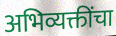
अभिव्यक्तींचा